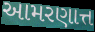
આમરણાત્ત